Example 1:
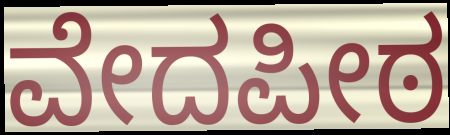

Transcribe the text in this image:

ವೇದಪೀಠ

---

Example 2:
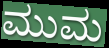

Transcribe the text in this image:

ಮುಮ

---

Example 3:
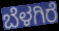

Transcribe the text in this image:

ಬೆಳಗಿರೆ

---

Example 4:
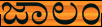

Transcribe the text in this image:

ಜಾಲಂ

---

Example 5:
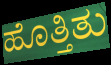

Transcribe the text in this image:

ಹೊತ್ತಿತು